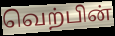
வெற்பின்